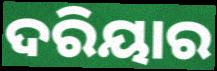
ଦରିୟାର